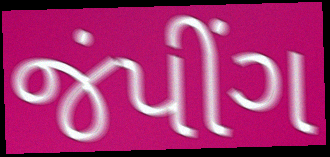
જંપીંગ